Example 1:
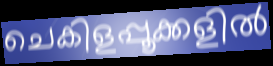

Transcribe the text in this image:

ചെകിളപ്പൂക്കളിൽ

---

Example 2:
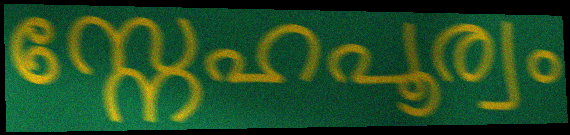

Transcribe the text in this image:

സ്നേഹപൂര്വം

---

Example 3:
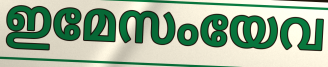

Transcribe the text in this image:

ഇമേസംയേവ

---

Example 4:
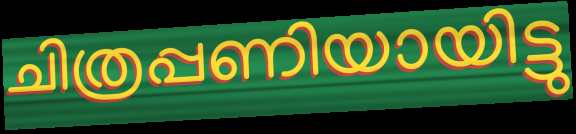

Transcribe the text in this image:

ചിത്രപ്പണിയായിട്ടു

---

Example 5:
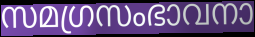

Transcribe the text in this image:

സമഗ്രസംഭാവനാ